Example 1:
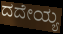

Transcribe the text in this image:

ದದೇಯ್ಯ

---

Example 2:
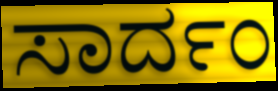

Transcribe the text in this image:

ಸಾರ್ದಂ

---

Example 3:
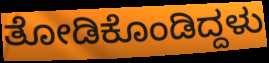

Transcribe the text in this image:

ತೋಡಿಕೊಂಡಿದ್ದಳು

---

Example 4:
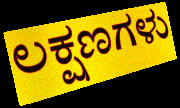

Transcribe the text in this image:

ಲಕ್ಷಣಗಳು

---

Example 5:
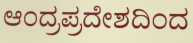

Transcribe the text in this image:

ಆಂದ್ರಪ್ರದೇಶದಿಂದ